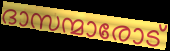
ദാസന്മാരോട്